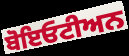
ਬੋਇਓਟੀਅਨ